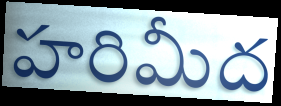
హరిమీద